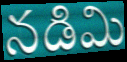
నడిమి